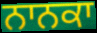
ਨਾਨਕਾ